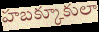
హబక్కూకులా